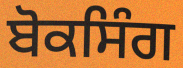
ਬੋਕਸਿੰਗ